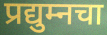
प्रद्युम्नचा